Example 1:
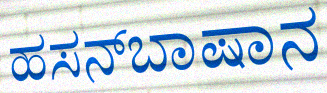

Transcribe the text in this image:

ಹಸನ್‌ಬಾಷಾನ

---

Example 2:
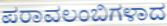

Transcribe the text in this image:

ಪರಾವಲಂಬಿಗಳಾದ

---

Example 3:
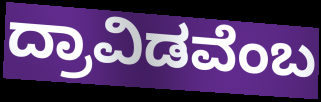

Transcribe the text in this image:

ದ್ರಾವಿಡವೆಂಬ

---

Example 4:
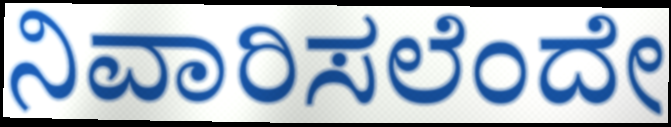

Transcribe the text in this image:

ನಿವಾರಿಸಲೆಂದೇ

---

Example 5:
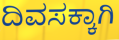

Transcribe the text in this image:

ದಿವಸಕ್ಕಾಗಿ